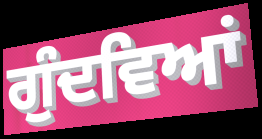
ਗੁੰਦਵਿਆਂ